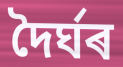
দৈৰ্ঘৰ